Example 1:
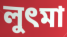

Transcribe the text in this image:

লুৎমা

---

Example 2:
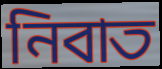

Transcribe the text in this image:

নিবাত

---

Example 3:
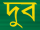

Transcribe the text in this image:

দুব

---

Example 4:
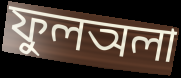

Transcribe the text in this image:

ফুলঅলা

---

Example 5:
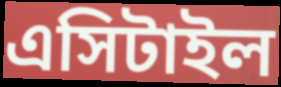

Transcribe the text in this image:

এসিটাইল